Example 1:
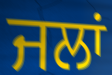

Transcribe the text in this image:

ਜਲਾਂ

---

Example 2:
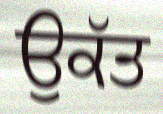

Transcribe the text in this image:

ਉਕੱਤ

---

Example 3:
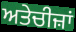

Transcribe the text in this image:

ਅਤੇਚੀਜ਼ਾਂ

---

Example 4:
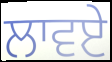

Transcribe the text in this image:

ਲਾਵਏ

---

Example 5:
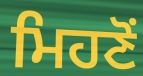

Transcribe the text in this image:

ਮਿਹਣੋਂ